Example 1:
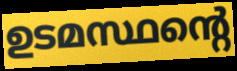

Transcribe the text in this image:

ഉടമസ്ഥന്റെ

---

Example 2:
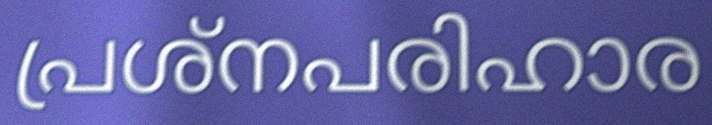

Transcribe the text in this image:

പ്രശ്നപരിഹാര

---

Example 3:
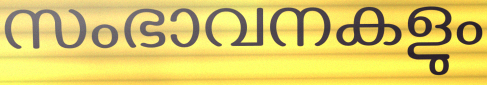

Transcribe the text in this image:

സംഭാവനകളും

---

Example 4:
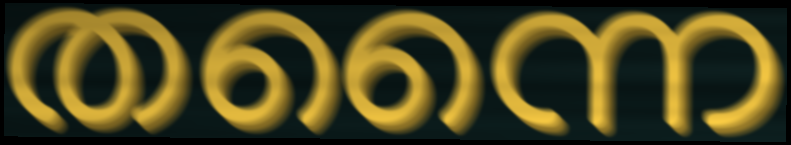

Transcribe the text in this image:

തന്നൈ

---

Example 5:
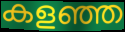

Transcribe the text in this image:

കളഞ്ഞ